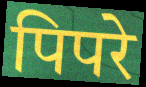
पिपरे